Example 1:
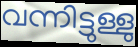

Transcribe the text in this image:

വന്നിട്ടുള്ളു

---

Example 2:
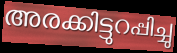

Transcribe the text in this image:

അരക്കിട്ടുറപ്പിച്ചു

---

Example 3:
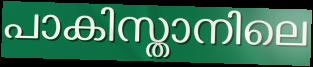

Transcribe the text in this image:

പാകിസ്താനിലെ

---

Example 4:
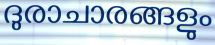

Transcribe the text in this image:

ദുരാചാരങ്ങളും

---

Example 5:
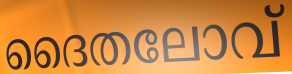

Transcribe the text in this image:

ദൈതലോവ്